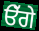
ੳੱਗੇ